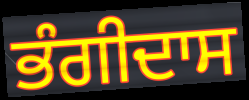
ਭੰਗੀਦਾਸ